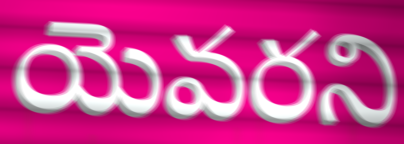
యెవరని